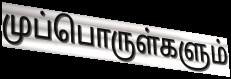
முப்பொருள்களும்